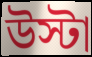
উস্টা